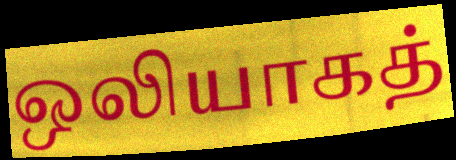
ஒலியாகத்